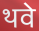
थवे